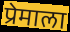
प्रेमाला